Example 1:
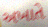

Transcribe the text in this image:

અખાતે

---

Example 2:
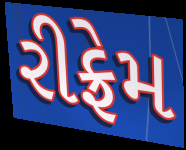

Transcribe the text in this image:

રીફ્રેમ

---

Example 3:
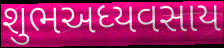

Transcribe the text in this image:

શુભઅધ્યવસાય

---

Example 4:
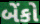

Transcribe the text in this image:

બેંકો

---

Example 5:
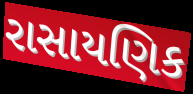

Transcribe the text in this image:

રાસાયણિક